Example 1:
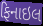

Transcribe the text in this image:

ફિનાઇલ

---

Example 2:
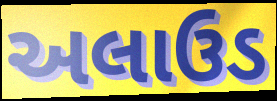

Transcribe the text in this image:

અલાઉડ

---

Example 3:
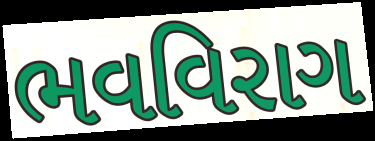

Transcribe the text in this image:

ભવવિરાગ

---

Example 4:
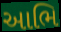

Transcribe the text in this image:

આભિ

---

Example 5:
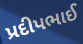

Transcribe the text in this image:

પ્રદીપભાઈ